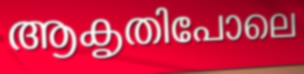
ആകൃതിപോലെ